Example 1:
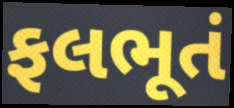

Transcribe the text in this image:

ફલભૂતં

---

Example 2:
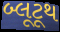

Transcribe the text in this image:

બ્લૂટૂથ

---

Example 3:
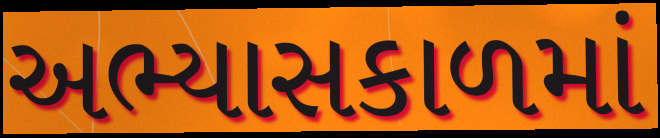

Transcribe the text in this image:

અભ્યાસકાળમાં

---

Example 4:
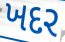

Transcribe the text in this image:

ખદર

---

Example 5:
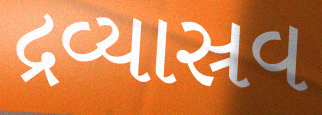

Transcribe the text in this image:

દ્રવ્યાસ્રવ